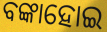
ବଙ୍କାହୋଇ